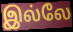
இல்லே